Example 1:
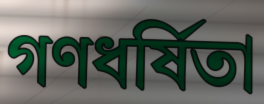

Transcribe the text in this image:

গণধর্ষিতা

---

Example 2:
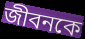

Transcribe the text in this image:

জীবনকে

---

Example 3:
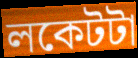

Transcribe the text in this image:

লকেটটা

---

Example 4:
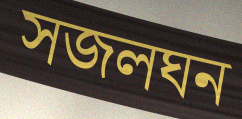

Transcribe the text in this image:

সজলঘন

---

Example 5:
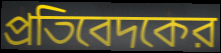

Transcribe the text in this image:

প্রতিবেদকের